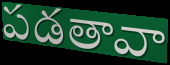
పడతావా